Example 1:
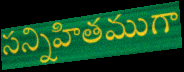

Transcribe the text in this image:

సన్నిహితముగా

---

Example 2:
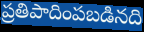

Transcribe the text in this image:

ప్రతిపాదింపబడినది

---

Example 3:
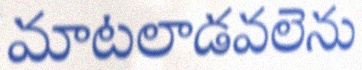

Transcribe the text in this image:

మాటలాడవలెను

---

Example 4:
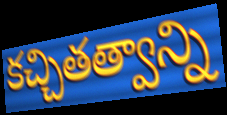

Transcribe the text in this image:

కచ్చితత్వాన్ని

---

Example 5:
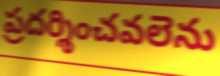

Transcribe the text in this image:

ప్రదర్శించవలెను